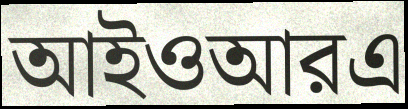
আইওআরএ